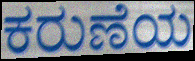
ಕರುಣೆಯ